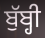
ਬੁੱਬ੍ਹੀ